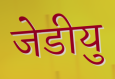
जेडीयु